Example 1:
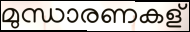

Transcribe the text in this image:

മുന്ധാരണകള്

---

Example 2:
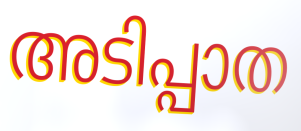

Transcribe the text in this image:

അടിപ്പാത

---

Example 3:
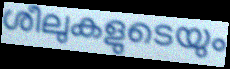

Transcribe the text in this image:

ശീലുകളുടെയും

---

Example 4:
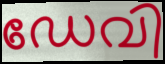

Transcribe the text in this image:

ഡേവി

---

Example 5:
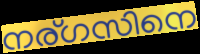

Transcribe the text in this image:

നര്ഗസിനെ